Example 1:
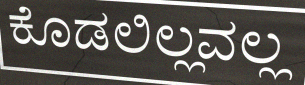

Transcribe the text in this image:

ಕೊಡಲಿಲ್ಲವಲ್ಲ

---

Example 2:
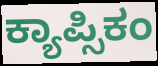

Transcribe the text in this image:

ಕ್ಯಾಪ್ಸಿಕಂ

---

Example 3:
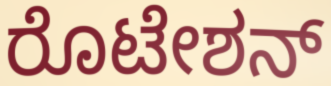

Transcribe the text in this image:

ರೊಟೇಶನ್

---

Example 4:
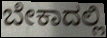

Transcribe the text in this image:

ಬೇಕಾದಲ್ಲಿ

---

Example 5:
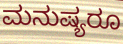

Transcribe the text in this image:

ಮನುಷ್ಯರೂ